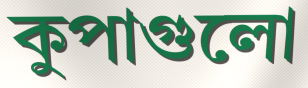
কুপাগুলো